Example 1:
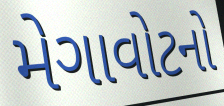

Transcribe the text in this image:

મેગાવોટનો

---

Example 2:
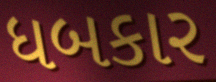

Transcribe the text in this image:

ધબકાર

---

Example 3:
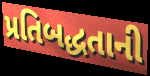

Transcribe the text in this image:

પ્રતિબદ્ધતાની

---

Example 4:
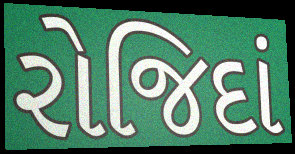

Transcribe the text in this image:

રોજિદાં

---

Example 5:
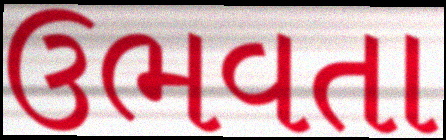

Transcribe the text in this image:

ઉભવતા